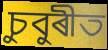
চুবুৰীত